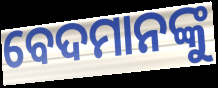
ବେଦମାନଙ୍କୁ